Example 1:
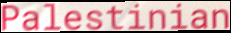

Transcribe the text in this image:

Palestinian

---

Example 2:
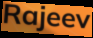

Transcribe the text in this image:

Rajeev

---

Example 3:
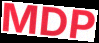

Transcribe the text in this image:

MDP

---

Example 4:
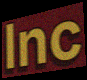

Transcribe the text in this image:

Inc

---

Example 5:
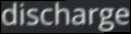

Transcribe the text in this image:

discharge